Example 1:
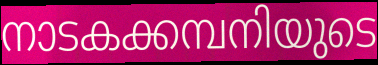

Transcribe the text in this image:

നാടകക്കമ്പനിയുടെ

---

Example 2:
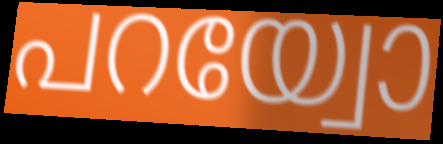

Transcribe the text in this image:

പറയ്വോ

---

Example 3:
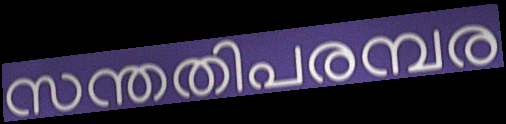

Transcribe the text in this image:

സന്തതിപരമ്പര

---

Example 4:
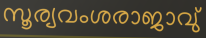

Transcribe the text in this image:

സൂര്യവംശരാജാവു്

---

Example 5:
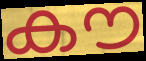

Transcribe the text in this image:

കൗ